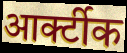
आर्क्टीक